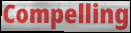
Compelling